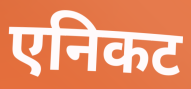
एनिकट